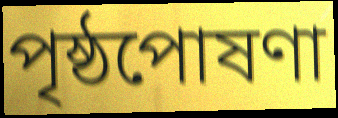
পৃষ্ঠপোষণা